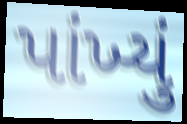
પાંખ્યું